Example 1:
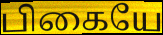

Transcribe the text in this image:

பிகையே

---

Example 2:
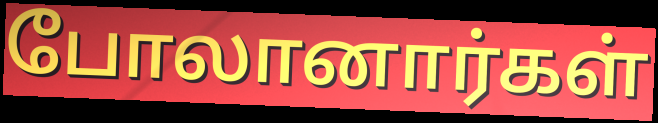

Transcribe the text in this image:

போலானார்கள்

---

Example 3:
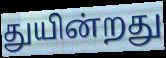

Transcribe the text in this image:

துயின்றது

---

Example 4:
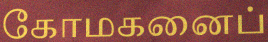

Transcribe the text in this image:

கோமகனைப்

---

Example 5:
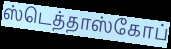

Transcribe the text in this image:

ஸ்டெத்தாஸ்கோப்